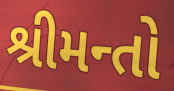
શ્રીમન્તો